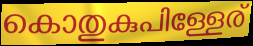
കൊതുകുപിള്ളേര്